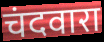
चंदवारा